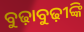
ବୁଢ଼ାବୁଢ଼ୀଙ୍କି